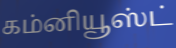
கம்னியூஸ்ட்